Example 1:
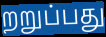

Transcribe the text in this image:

றறுப்பது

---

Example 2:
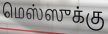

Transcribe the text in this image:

மெஸ்ஸுக்கு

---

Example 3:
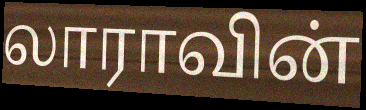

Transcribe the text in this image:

லாராவின்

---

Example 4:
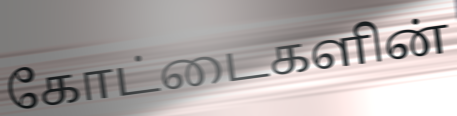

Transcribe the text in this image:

கோட்டைகளின்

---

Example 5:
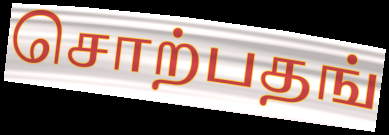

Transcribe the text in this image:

சொற்பதங்